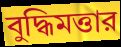
বুদ্ধিমত্তার